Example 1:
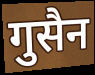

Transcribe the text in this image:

गुसैन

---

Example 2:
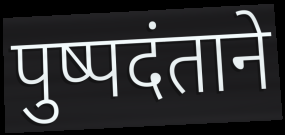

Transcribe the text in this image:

पुष्पदंताने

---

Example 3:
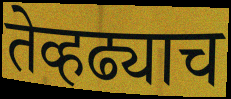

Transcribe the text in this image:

तेव्हढ्याच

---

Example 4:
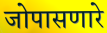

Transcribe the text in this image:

जोपासणारे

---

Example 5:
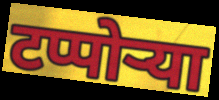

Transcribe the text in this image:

टप्पोऱ्या